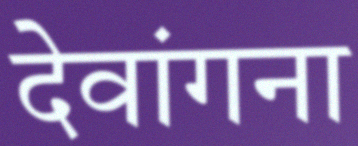
देवांगना